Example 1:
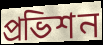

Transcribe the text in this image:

প্রভিশন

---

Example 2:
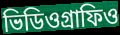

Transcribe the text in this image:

ভিডিওগ্রাফিও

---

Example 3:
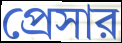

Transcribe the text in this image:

প্রেসার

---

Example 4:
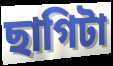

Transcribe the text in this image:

ছাগিটা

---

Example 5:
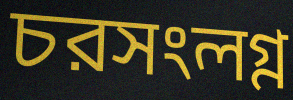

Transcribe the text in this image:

চরসংলগ্ন